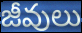
జీవులు